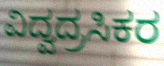
ವಿದ್ವದ್ರಸಿಕರ